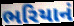
ભરિયાનં